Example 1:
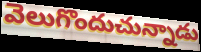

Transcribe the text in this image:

వెలుగొందుచున్నాడు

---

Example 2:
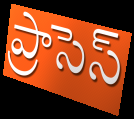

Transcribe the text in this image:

ప్రాసెస్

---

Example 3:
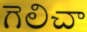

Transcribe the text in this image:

గెలిచా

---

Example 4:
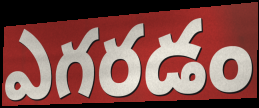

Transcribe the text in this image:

ఎగరడం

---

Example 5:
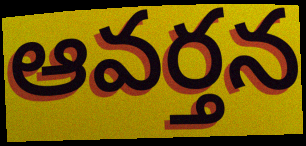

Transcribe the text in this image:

ఆవర్తన